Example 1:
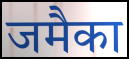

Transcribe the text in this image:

जमैका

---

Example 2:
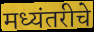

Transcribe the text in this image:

मध्यंतरीचे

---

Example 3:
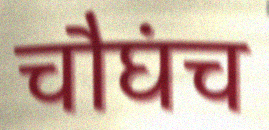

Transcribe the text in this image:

चौघंच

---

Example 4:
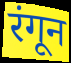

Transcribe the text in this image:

रंगून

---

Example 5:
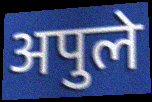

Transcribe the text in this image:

अपुले